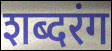
शब्दरंग